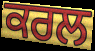
ਕਰਲ